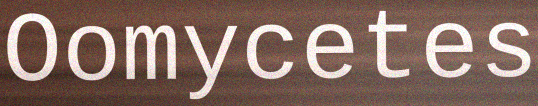
Oomycetes